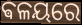
ଵଳୟରେ